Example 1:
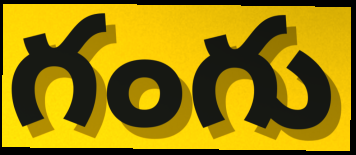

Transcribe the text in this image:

గంగు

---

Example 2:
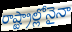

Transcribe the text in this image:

రాష్ట్రాల్లోనైనా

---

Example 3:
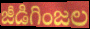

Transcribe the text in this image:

జీడిగింజల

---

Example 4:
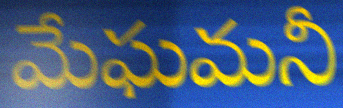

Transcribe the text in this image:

మేఘమనీ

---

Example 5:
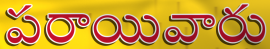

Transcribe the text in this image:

పరాయివారు